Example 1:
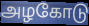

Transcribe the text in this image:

அழகோடு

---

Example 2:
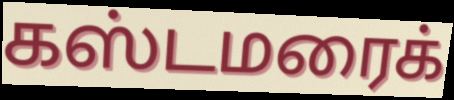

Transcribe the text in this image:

கஸ்டமரைக்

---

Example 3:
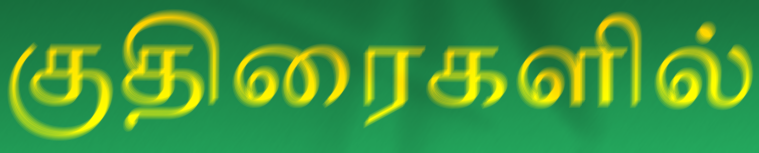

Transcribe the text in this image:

குதிரைகளில்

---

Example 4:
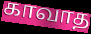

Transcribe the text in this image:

காவாத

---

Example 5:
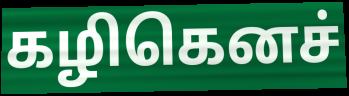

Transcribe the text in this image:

கழிகெனச்